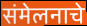
संमेलनाचे